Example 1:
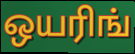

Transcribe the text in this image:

ஒயரிங்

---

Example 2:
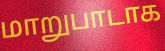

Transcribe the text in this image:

மாறுபாடாக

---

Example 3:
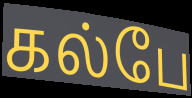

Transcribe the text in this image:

கல்பே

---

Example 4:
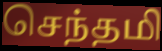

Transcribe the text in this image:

செந்தமி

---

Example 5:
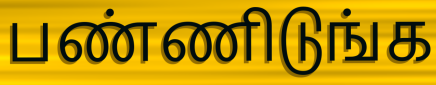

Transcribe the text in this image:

பண்ணிடுங்க